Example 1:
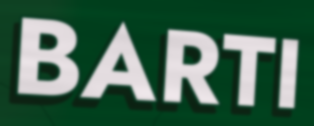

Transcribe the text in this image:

BARTI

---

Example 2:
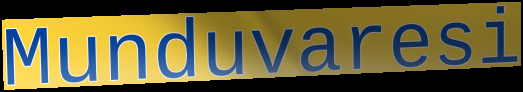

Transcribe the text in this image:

Munduvaresi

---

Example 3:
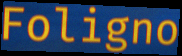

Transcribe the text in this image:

Foligno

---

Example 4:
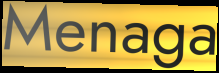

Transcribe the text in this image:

Menaga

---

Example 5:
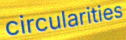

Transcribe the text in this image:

circularities